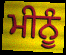
ਮੀਨੂੰ